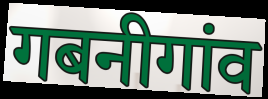
गबनीगांव